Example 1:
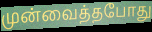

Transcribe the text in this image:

முன்வைத்தபோது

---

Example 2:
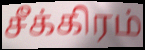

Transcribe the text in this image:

சீக்கிரம்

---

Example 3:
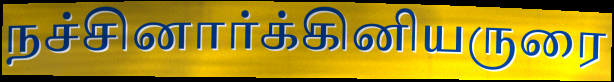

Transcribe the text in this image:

நச்சினார்க்கினியருரை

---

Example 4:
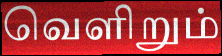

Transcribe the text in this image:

வெளிறும்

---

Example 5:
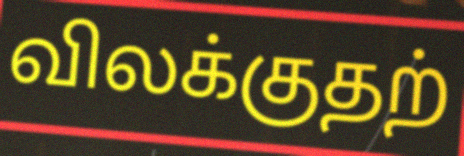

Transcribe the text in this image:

விலக்குதற்